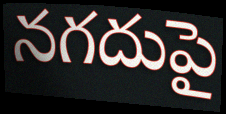
నగదుపై